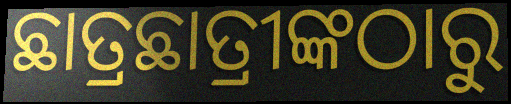
ଛାତ୍ରଛାତ୍ରୀଙ୍କଠାରୁ